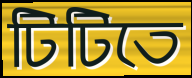
টিটিতে